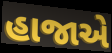
હાજાએ